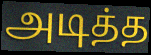
அடித்த